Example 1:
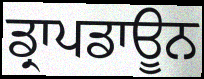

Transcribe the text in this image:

ਡ੍ਰਾਪਡਾਊਨ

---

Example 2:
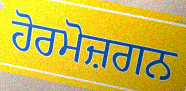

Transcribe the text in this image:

ਹੋਰਮੋਜ਼ਗਨ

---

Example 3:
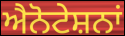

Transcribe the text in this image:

ਐਨੋਟੇਸ਼ਨਾਂ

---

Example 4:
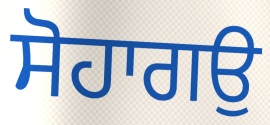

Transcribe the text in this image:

ਸੋਹਾਗਉ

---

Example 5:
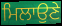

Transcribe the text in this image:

ਮਿਲਾਉਣੇ